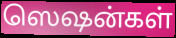
ஸெஷன்கள்